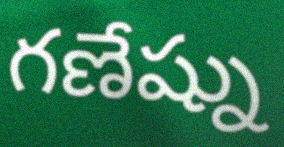
గణేష్ను